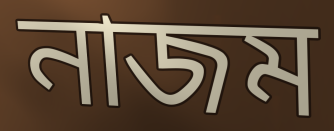
নাজম